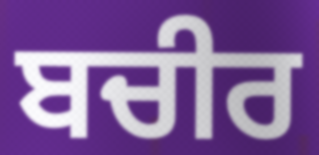
ਬਚੀਰ